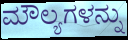
ಮೌಲ್ಯಗಳನ್ನು